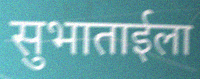
सुभाताईला